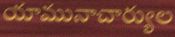
యామునాచార్యుల